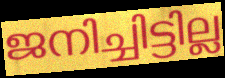
ജനിച്ചിട്ടില്ല